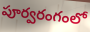
పూర్వరంగంలో